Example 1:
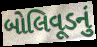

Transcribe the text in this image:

બોલિવૂડનું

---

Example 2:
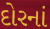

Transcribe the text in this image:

દોરનાં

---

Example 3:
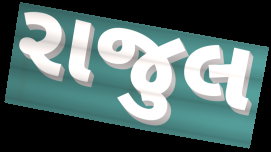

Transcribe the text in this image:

રાજુલ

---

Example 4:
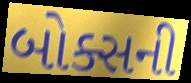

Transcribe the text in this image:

બોક્સની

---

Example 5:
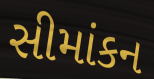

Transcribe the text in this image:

સીમાંકન